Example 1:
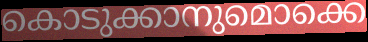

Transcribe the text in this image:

കൊടുക്കാനുമൊക്കെ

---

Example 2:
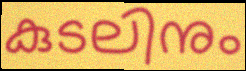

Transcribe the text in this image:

കുടലിനും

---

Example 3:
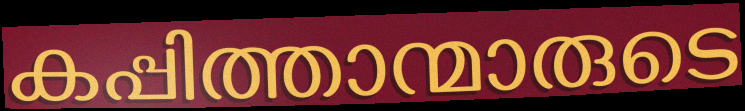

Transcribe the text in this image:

കപ്പിത്താന്മാരുടെ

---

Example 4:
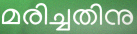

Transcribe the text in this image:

മരിച്ചതിനു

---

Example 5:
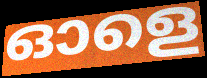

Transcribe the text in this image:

ഓളെ